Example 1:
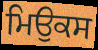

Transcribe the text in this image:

ਮਿਉਕਸ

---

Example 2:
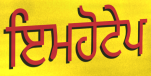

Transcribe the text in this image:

ਇਮਹੋਟੇਪ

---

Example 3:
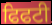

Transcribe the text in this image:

ਫਿਫਟੀ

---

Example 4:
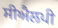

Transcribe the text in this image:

ਸੀਐਲਪੀ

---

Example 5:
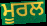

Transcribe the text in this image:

ਮੂਰਲ